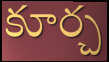
కూర్చ